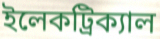
ইলেকট্রিক্যাল